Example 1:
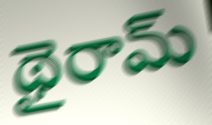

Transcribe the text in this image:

థైరామ్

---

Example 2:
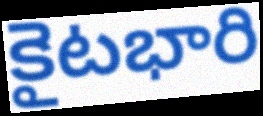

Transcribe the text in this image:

కైటభారి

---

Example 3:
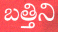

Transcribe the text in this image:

బత్తిని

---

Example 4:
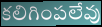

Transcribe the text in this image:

కలిగింపలేవు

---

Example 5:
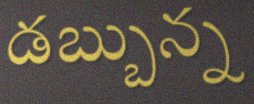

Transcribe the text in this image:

డబ్బున్న